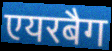
एयरबैग